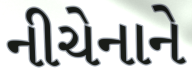
નીચેનાને